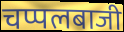
चप्पलबाजी